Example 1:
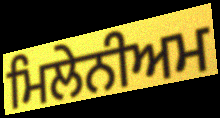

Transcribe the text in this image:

ਮਿਲੇਨੀਅਮ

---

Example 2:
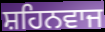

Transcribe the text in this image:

ਸ਼ਹਿਨਵਾਜ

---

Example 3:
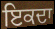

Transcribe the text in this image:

ਇਕਦਾ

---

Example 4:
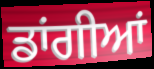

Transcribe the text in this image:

ਡਾਂਗੀਆਂ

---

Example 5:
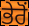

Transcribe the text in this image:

ਭੇਰੋਂ